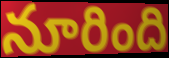
నూరింది